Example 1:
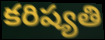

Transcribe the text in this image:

కరిష్యతి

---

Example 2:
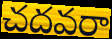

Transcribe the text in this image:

చదవరా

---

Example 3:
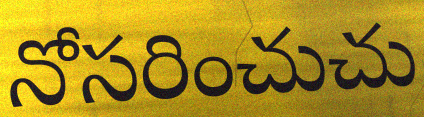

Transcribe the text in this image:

నోసరించుచు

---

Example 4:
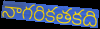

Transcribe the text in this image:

నాగరికతకది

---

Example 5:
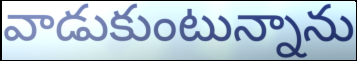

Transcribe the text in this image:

వాడుకుంటున్నాను